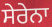
ਸੇਰੇਨਾ